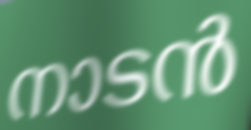
നാടൻ